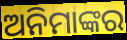
ଅନିମାଙ୍କର